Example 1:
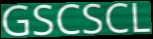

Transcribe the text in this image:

GSCSCL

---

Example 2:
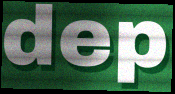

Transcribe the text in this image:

dep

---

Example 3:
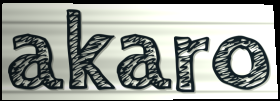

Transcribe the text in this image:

akaro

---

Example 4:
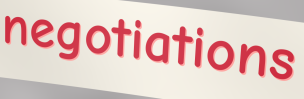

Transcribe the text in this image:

negotiations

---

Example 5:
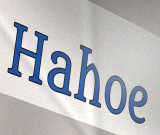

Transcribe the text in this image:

Hahoe